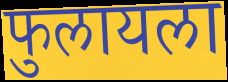
फुलायला